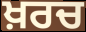
ਖ਼ਰਚ